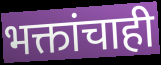
भक्तांचाही